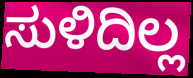
ಸುಳಿದಿಲ್ಲ